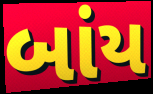
બાંય